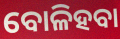
ବୋଳିହବା